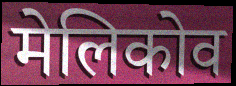
मेलिकोव